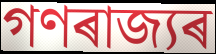
গণৰাজ্যৰ